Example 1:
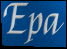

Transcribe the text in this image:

Epa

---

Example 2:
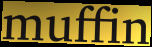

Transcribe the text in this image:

muffin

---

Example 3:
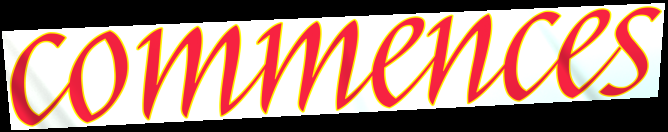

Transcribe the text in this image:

commences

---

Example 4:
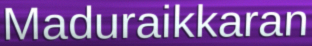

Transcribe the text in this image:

Maduraikkaran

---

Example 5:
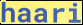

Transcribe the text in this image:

haari